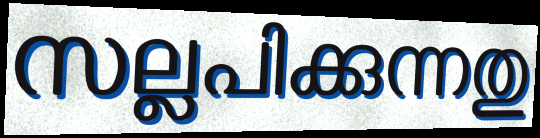
സല്ലപിക്കുന്നതു